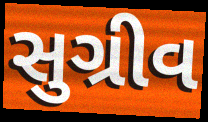
સુગ્રીવ